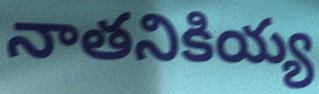
నాతనికియ్య